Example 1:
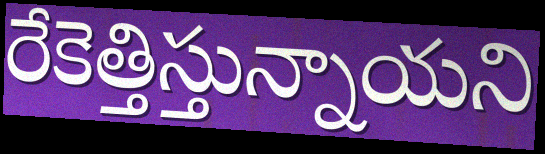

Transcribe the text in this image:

రేకెత్తిస్తున్నాయని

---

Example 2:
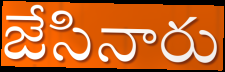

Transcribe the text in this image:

జేసినారు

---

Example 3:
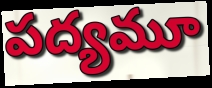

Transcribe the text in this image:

పద్యమూ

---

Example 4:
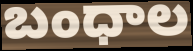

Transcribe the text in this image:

బంధాల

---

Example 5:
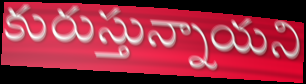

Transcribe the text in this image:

కురుస్తున్నాయని